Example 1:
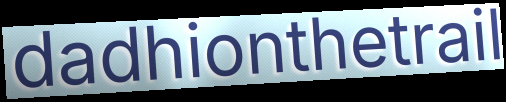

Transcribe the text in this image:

dadhionthetrail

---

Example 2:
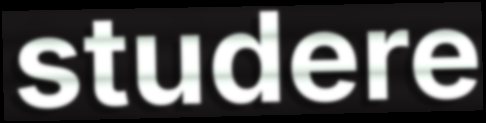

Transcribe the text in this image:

studere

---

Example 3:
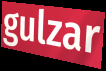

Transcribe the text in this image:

gulzar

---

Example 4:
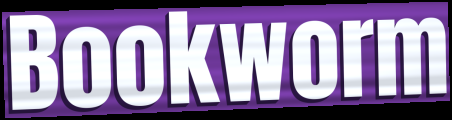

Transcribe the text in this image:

Bookworm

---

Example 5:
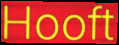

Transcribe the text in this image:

Hooft